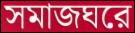
সমাজঘরে